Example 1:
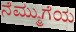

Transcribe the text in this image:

ನೆಮ್ಮುಗೆಯ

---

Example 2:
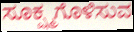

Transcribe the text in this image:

ಸೂಕ್ಷ್ಮಗೊಳಿಸುವ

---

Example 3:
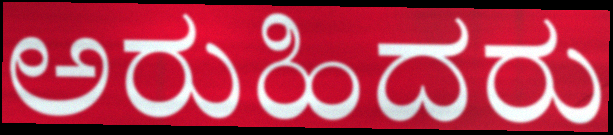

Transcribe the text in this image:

ಅರುಹಿದರು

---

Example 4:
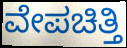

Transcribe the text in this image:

ವೇಪಚಿತ್ತಿ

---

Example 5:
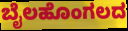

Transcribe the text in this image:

ಬೈಲಹೊಂಗಲದ